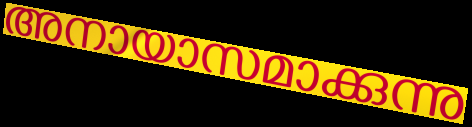
അനായാസമാക്കുന്നു